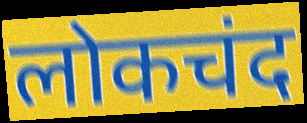
लोकचंद